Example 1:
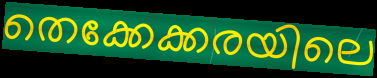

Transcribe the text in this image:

തെക്കേക്കരയിലെ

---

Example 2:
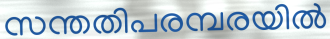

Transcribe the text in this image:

സന്തതിപരമ്പരയിൽ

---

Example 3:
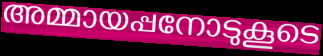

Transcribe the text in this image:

അമ്മായപ്പനോടുകൂടെ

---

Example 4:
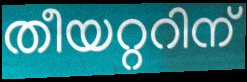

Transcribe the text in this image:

തീയറ്ററിന്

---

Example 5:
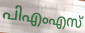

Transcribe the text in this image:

പിഎംഎസ്